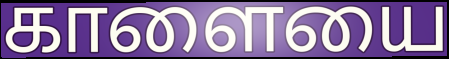
காளையை